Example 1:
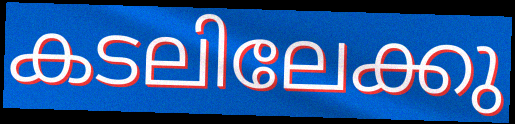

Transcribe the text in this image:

കടലിലേക്കു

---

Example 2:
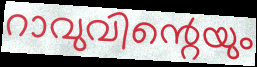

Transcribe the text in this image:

റാവുവിന്റെയും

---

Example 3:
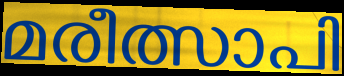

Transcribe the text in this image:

മരീത്സാപി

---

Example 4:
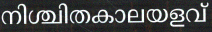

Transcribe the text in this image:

നിശ്ചിതകാലയളവ്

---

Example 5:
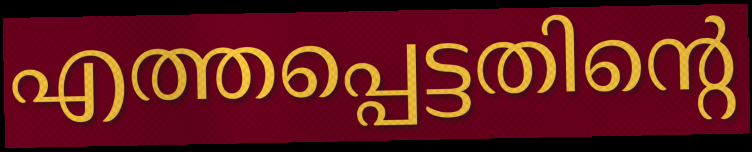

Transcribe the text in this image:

എത്തപ്പെട്ടതിന്റെ